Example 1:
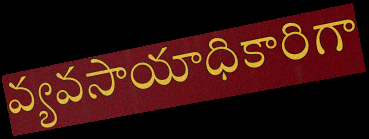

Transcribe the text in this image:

వ్యవసాయాధికారిగా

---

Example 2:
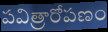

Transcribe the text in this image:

పవిత్రారోపణం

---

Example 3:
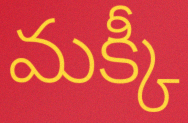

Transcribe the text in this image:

మక్కీ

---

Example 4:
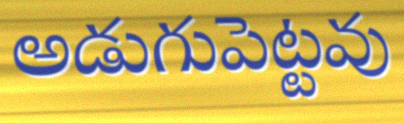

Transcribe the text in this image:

అడుగుపెట్టవు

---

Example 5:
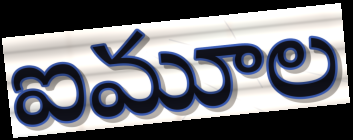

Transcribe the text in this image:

ఐమూల